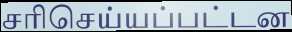
சரிசெய்யப்பட்டன